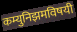
कम्युनिझमविषयी